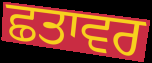
ਛਤਾਵਰ